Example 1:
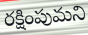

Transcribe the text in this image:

రక్షింపుమని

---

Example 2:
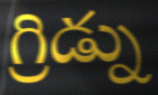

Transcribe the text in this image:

గ్రిడ్ను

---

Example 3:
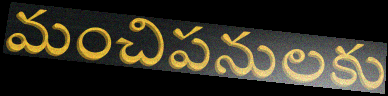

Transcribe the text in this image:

మంచిపనులకు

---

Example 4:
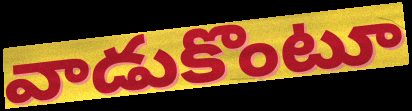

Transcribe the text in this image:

వాడుకొంటూ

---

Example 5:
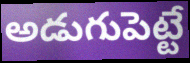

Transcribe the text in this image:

అడుగుపెట్టే